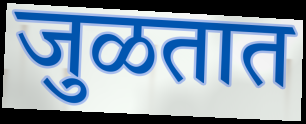
जुळतात